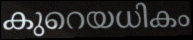
കുറെയധികം